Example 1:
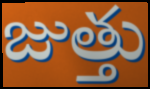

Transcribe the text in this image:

జుత్తు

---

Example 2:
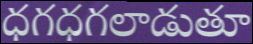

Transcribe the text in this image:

ధగధగలాడుతూ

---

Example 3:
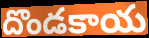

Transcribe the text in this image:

దొండకాయ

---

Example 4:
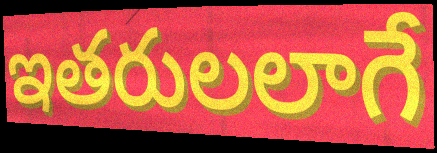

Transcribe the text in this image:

ఇతరులలాగే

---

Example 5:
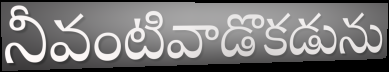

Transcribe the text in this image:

నీవంటివాడొకడును